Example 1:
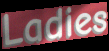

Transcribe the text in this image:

Ladies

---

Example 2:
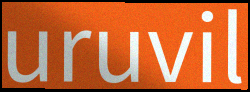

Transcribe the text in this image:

uruvil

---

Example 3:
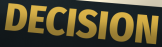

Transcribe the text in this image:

DECISION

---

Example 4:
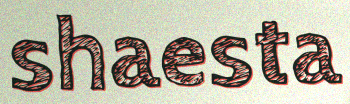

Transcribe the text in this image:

shaesta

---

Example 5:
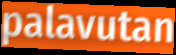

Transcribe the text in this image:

palavutan